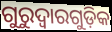
ଗୁରୁଦ୍ବାରଗୁଡ଼ିକ